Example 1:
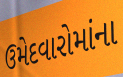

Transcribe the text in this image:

ઉમેદવારોમાંના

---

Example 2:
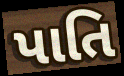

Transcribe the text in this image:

પાતિ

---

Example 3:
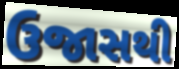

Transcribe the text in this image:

ઉજાસથી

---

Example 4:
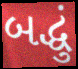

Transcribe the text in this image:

બદ્ધું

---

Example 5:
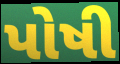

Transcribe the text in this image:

પોષી